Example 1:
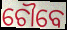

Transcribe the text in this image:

ଚୌବେ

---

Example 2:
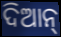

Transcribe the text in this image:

ଦିଆନ୍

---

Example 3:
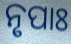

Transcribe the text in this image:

ନୃପାଃ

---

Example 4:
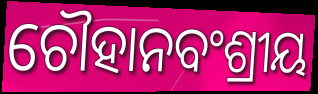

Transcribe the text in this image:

ଚୌହାନବଂଶ୍ରୀୟ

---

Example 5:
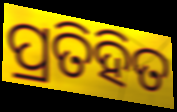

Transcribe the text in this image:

ପ୍ରତିହିତ